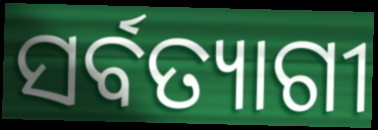
ସର୍ବତ୍ୟାଗୀ